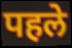
पहले